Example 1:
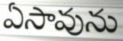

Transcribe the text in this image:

ఏసావును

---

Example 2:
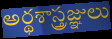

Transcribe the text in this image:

అర్థశాస్త్రజ్ఞులు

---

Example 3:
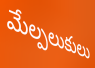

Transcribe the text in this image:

మేల్పలుకులు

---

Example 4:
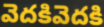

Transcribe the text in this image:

వెదకివెదకి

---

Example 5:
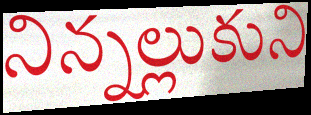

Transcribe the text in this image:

నిన్నల్లుకుని